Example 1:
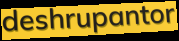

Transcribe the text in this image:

deshrupantor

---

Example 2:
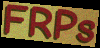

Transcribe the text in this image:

FRPs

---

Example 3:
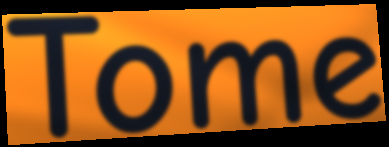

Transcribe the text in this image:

Tome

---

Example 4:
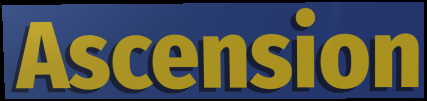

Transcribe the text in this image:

Ascension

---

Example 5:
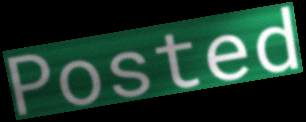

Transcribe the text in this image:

Posted